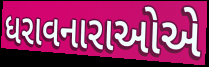
ધરાવનારાઓએ